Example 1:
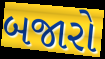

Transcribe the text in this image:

બજારો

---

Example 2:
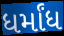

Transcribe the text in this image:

ધર્માંધ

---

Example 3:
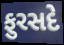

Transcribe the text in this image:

ફુરસદે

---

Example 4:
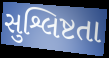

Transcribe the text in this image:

સુશ્લિષ્ટતા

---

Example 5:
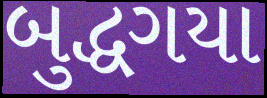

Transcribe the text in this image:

બુદ્ધગયા